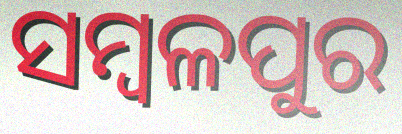
ସମ୍ବଳପୁର